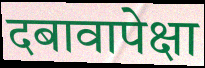
दबावापेक्षा